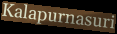
Kalapurnasuri